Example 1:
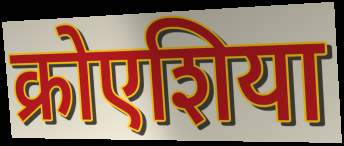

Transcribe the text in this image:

क्रोएशिया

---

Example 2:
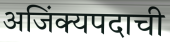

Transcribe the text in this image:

अजिंक्यपदाची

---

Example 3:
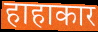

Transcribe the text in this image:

हाहाकार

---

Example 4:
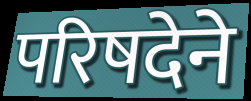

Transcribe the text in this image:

परिषदेने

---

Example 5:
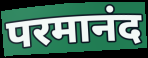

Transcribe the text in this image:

परमानंद